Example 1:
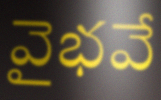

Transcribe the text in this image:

వైభవే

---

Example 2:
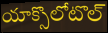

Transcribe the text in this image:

యాక్సొలోటొల్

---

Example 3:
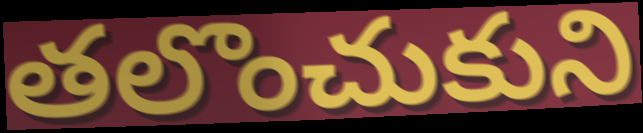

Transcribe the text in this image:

తలొంచుకుని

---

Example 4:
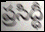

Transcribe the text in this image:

ప్రసిద్ధీ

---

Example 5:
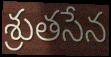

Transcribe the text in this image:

శ్రుతసేన